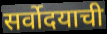
सर्वोदयाची